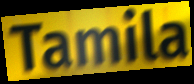
Tamila